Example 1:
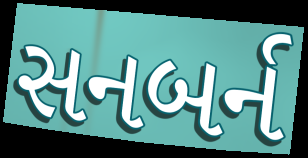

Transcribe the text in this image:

સનબર્ન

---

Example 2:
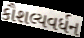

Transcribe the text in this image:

કૌશલ્યવર્ધન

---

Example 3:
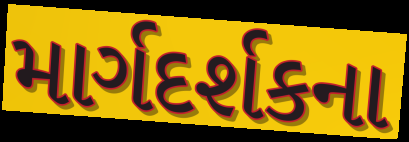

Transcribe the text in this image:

માર્ગદર્શકના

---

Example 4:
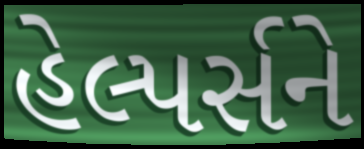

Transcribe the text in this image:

હેલ્પર્સને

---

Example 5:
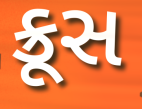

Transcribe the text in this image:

ક્રૂસ